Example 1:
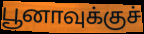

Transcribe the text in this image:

பூனாவுக்குச்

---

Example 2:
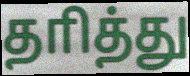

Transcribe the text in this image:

தரித்து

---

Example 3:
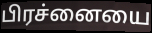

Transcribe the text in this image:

பிரச்னையை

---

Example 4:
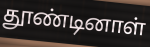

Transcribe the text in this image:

தூண்டினாள்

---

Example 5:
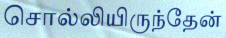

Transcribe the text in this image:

சொல்லியிருந்தேன்